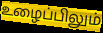
உழைப்பிலும்